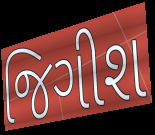
જિગીશ